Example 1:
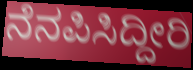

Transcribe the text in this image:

ನೆನಪಿಸಿದ್ದೀರಿ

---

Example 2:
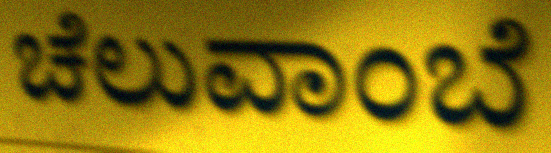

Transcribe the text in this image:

ಚೆಲುವಾಂಬೆ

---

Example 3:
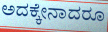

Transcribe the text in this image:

ಅದಕ್ಕೇನಾದರೂ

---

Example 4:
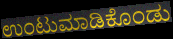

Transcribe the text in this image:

ಉಂಟುಮಾಡಿಕೊಂಡು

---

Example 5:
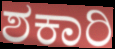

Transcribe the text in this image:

ಶಕಾರಿ